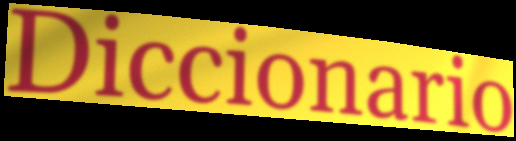
Diccionario